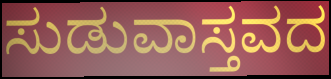
ಸುಡುವಾಸ್ತವದ